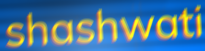
shashwati